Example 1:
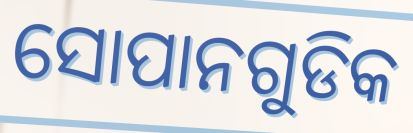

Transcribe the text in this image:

ସୋପାନଗୁଡିକ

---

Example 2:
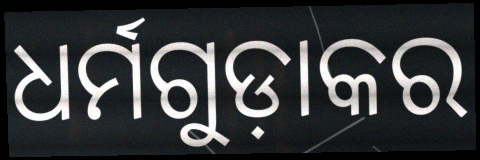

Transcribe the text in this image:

ଧର୍ମଗୁଡ଼ାକର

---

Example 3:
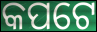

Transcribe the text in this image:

କପଟେ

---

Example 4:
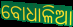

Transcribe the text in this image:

ବୋଧାଳିଆ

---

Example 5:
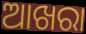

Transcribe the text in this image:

ଆଖରା